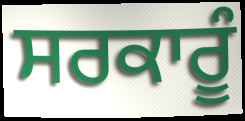
ਸਰਕਾਰੂੰ